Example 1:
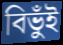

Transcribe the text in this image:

বিভুঁই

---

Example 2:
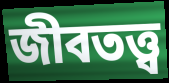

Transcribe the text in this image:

জীবতত্ত্ব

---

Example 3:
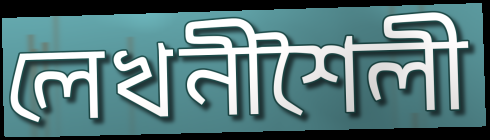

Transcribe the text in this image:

লেখনীশৈলী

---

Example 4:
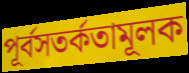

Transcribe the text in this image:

পূর্বসতর্কতামূলক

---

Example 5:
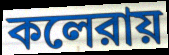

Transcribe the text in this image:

কলেরায়